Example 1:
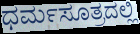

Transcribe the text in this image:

ಧರ್ಮಸೂತ್ರದಲ್ಲಿ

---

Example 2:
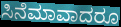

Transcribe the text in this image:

ಸಿನೆಮಾವಾದರೂ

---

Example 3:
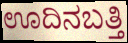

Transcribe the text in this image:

ಊದಿನಬತ್ತಿ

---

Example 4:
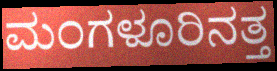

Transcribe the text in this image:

ಮಂಗಳೂರಿನತ್ತ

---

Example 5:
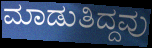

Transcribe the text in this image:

ಮಾಡುತಿದ್ದವು